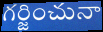
గర్జించునా